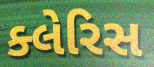
ક્લેરિસ